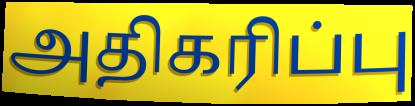
அதிகரிப்பு